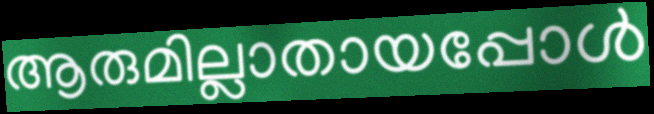
ആരുമില്ലാതായപ്പോൾ